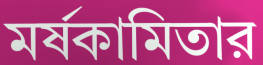
মর্ষকামিতার